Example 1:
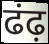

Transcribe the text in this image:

ढंढ़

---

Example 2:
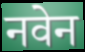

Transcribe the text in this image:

नवेन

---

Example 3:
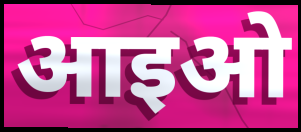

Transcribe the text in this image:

आइओ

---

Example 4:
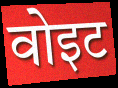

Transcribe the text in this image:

वोइट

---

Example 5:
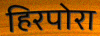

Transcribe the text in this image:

हिरपोरा